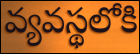
వ్యవస్థలోకి